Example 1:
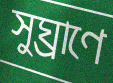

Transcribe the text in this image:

সুঘ্রাণে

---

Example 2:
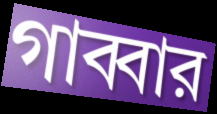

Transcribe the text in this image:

গাব্বার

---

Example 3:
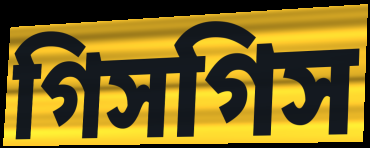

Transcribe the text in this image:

গিসগিস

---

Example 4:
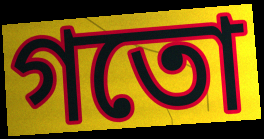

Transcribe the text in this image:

গতো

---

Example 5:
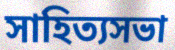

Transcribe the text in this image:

সাহিত্যসভা